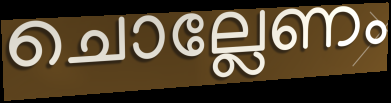
ചൊല്ലേണം